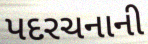
પદરચનાની